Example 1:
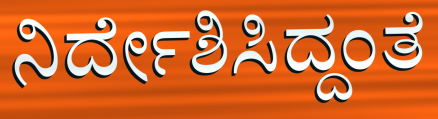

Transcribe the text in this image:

ನಿರ್ದೇಶಿಸಿದ್ದಂತೆ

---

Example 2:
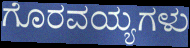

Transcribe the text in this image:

ಗೊರವಯ್ಯಗಳು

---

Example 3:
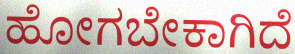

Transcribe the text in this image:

ಹೋಗಬೇಕಾಗಿದೆ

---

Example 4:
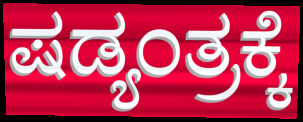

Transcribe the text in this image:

ಷಡ್ಯಂತ್ರಕ್ಕೆ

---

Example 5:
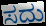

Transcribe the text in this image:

ಸದು